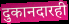
दुकानदारही